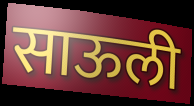
साऊली